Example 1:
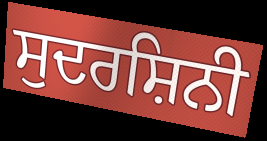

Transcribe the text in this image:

ਸੁਦਰਸ਼ਿਨੀ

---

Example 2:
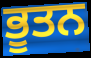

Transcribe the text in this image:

ਭੂਤਨ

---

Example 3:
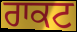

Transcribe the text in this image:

ਰਾਕਟ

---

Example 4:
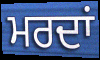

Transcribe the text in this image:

ਮਰਦਾਂ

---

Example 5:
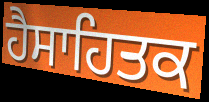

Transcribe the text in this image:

ਹੈਸਾਹਿਤਕ